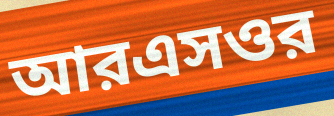
আরএসওর